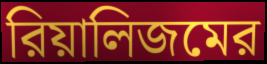
রিয়ালিজমের